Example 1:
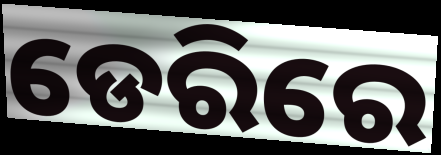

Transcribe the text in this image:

ଡେରିରେ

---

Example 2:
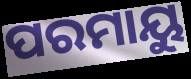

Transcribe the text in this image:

ପରମାୟୁ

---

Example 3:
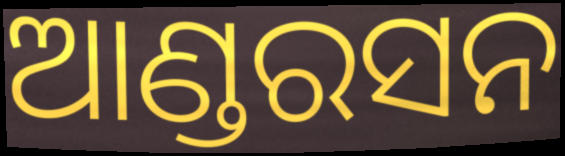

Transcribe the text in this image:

ଆଣ୍ଡରସନ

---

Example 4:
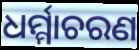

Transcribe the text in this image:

ଧର୍ମ୍ମାଚରଣ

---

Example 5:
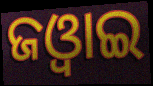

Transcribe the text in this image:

ଜଓ୍ବାଇ